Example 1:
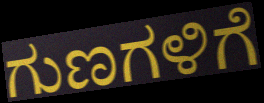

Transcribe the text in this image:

ಗುಣಗಳಿಗೆ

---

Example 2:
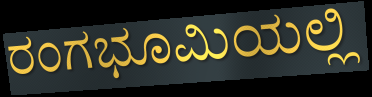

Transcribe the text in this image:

ರಂಗಭೂಮಿಯಲ್ಲಿ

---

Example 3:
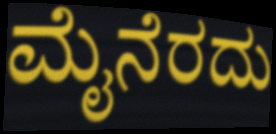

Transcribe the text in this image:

ಮೈನೆರದು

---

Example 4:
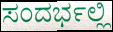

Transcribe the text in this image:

ಸಂದರ್ಭಲ್ಲಿ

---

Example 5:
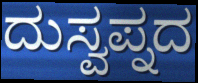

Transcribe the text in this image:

ದುಸ್ವಪ್ನದ